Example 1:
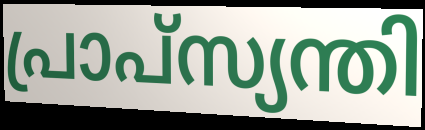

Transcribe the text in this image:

പ്രാപ്സ്യന്തി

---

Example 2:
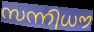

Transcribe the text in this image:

സന്നിധൗ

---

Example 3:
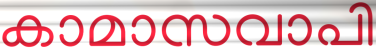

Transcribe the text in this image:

കാമാസവാപി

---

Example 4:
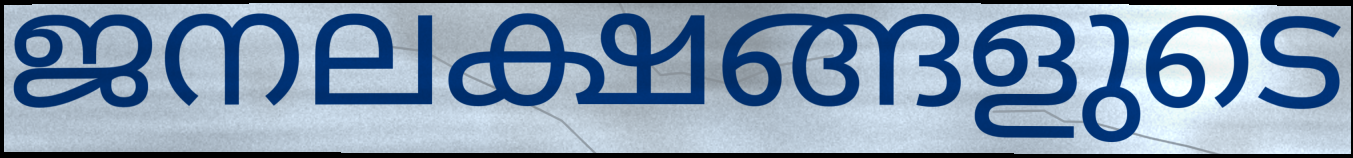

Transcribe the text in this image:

ജനലക്ഷങ്ങളുടെ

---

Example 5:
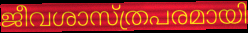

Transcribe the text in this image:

ജീവശാസ്ത്രപരമായി